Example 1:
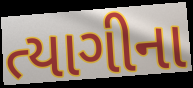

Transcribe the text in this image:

ત્યાગીના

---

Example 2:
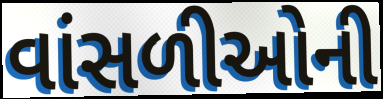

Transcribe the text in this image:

વાંસળીઓની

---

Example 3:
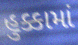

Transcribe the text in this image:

હુક્કામાં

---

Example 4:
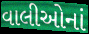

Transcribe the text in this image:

વાલીઓનાં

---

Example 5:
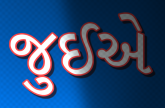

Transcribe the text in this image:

જુઈએ